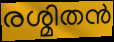
രശ്മിതൻ